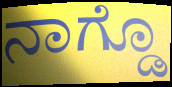
ನಾಗ್ಡೊ